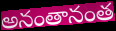
అనంతానంత